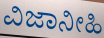
ವಿಜಾನೀಹಿ